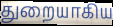
துறையாகிய